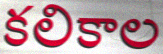
కలికాల